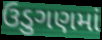
ઉડુગણમાં